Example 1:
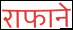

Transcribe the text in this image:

राफाने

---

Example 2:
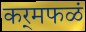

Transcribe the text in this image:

कर्मफळं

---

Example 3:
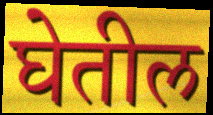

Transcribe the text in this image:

घेतील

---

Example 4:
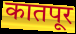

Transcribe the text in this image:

कातपूर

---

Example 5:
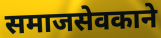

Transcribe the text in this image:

समाजसेवकाने